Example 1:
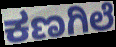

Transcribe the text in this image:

ಕಣಗಿಲೆ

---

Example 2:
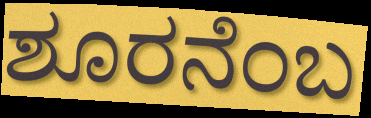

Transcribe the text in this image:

ಶೂರನೆಂಬ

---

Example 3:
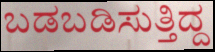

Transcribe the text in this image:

ಬಡಬಡಿಸುತ್ತಿದ್ದ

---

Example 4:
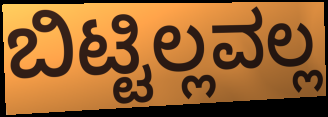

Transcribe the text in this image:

ಬಿಟ್ಟಿಲ್ಲವಲ್ಲ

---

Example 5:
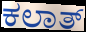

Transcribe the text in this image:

ಕಲಾತ್